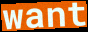
want